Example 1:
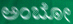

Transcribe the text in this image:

ಅಂಬೋ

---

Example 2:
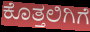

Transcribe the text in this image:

ಕೊತ್ತಲಿಗಿಗೆ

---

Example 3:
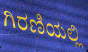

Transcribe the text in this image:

ಗಿರಣಿಯಲ್ಲಿ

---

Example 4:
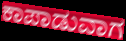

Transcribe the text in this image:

ಕಾಪಾಡುವಾಗ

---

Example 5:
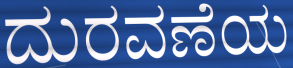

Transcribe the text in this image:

ದುರವಣೆಯ